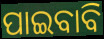
ପାଇବାବି